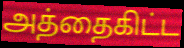
அத்தைகிட்ட